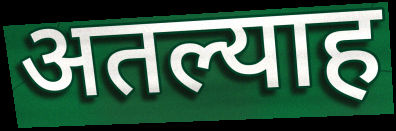
अतल्याह